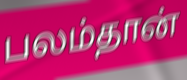
பலம்தான்